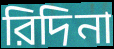
রিদিনা